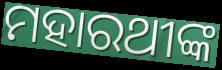
ମହାରଥୀଙ୍କ